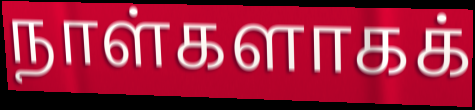
நாள்களாகக்